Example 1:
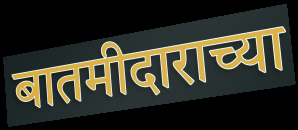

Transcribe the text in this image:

बातमीदाराच्या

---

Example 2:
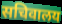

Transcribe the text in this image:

सचिवालय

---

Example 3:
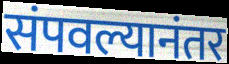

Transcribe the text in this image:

संपवल्यानंतर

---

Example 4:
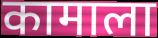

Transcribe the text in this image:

कामाला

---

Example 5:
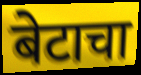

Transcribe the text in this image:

बेटाचा